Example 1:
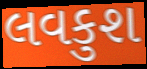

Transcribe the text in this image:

લવકુશ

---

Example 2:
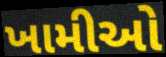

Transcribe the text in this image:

ખામીઓ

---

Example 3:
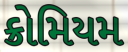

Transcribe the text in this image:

ક્રોમિયમ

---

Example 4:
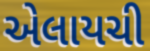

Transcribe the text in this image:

એલાયચી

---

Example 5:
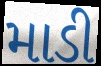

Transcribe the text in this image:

માડી